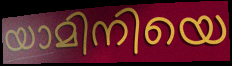
യാമിനിയെ